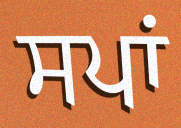
ਸਪਾਂ